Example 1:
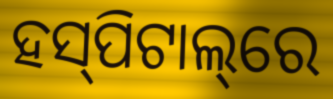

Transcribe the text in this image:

ହସ୍‌ପିଟାଲ୍‌ରେ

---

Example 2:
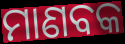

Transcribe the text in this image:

ମାଣବକ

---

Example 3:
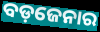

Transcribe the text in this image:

ବଡ଼ଜେନାର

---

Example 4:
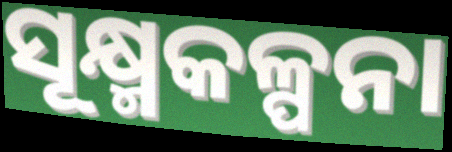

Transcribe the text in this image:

ସୂକ୍ଷ୍ମକଳ୍ପନା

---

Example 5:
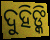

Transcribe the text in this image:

ଦୁହିଙ୍କି